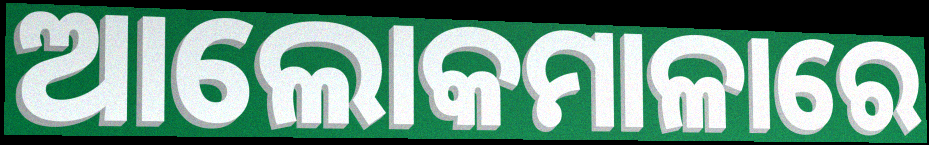
ଆଲୋକମାଳାରେ